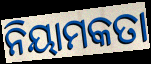
ନିୟାମକତା